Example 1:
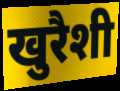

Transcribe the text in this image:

खुरैशी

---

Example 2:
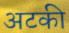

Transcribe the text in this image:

अटकी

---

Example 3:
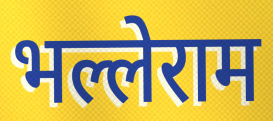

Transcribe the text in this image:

भल्लेराम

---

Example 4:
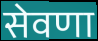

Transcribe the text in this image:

सेवणा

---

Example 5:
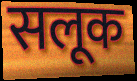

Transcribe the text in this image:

सलूक